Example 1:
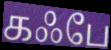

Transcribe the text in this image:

கஃபே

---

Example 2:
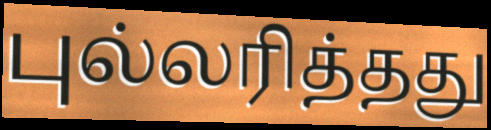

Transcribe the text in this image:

புல்லரித்தது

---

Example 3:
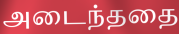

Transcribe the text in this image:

அடைந்ததை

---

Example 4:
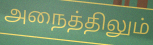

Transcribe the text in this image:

அநைத்திலும்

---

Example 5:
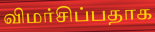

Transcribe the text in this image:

விமர்சிப்பதாக